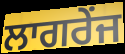
ਲਾਗਰੇਂਜ